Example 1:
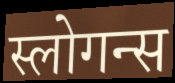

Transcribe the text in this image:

स्लोगन्स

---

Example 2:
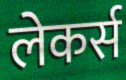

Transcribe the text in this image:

लेकर्स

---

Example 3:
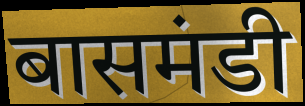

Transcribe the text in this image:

बासमंडी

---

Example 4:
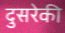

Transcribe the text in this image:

दुसरेकी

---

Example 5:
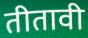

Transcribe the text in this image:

तीतावी